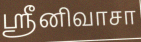
ஸ்ரீனிவாசா